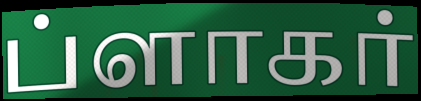
ப்ளாகர்